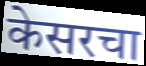
केसरचा